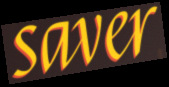
saver